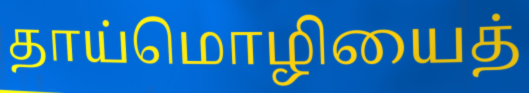
தாய்மொழியைத்